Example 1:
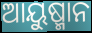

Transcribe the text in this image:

ଆୟୁଷ୍ମାନ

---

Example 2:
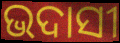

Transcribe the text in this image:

ଭଦାସୀ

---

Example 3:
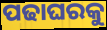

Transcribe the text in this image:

ପଢାଘରକୁ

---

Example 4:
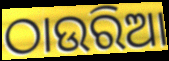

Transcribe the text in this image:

ଠାଉରିଆ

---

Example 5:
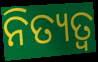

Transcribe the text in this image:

ନିତ୍ୟତ୍ୱ